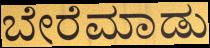
ಬೇರೆಮಾಡು